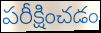
పరీక్షించడం